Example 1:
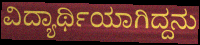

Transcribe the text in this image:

ವಿದ್ಯಾರ್ಥಿಯಾಗಿದ್ದನು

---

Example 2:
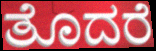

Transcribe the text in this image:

ತೊದರೆ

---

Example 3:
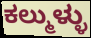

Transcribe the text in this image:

ಕಲ್ಮುಳ್ಳು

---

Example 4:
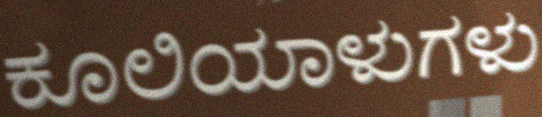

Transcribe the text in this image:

ಕೂಲಿಯಾಳುಗಳು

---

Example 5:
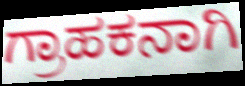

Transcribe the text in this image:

ಗ್ರಾಹಕನಾಗಿ